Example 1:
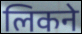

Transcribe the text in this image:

लिकने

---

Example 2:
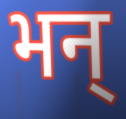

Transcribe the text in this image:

भन्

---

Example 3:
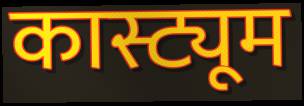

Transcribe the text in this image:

कास्ट्यूम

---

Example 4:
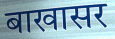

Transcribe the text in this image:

बाखासर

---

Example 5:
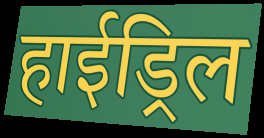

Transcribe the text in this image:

हाईड्रिल